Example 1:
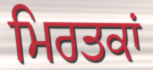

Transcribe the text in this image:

ਮਿਰਤਕਾਂ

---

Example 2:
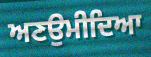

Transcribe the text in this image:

ਅਣਉਮੀਦਿਆ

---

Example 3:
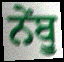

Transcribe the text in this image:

ਨੇਂਬੂ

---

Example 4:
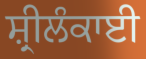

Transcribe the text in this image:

ਸ਼੍ਰੀਲੰਕਾਈ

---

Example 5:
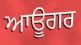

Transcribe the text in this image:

ਆਊਗਰ